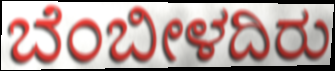
ಬೆಂಬೀಳದಿರು